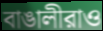
বাঙালীরাও